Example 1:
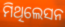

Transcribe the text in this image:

ମିଥିଲେସନ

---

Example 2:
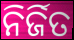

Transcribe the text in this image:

ନିର୍ଜିତ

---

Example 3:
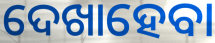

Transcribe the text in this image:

ଦେଖାହେବା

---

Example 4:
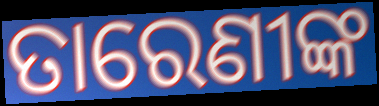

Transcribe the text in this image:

ତାରେଣୀଙ୍କ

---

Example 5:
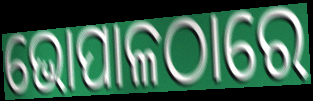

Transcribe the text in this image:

ଭୋପାଳଠାରେ